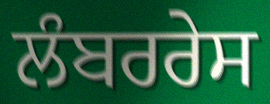
ਲੰਬਰਰੇਸ